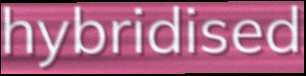
hybridised